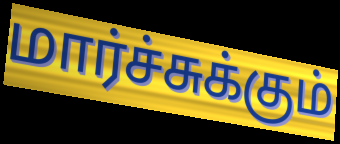
மார்ச்சுக்கும்